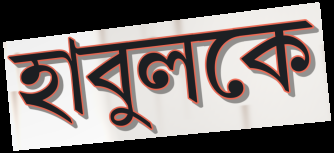
হাবুলকে